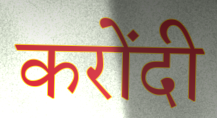
करोंदी